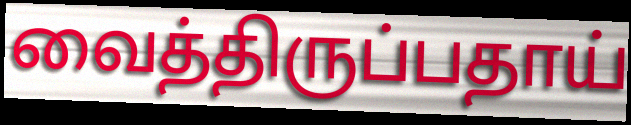
வைத்திருப்பதாய்